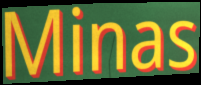
Minas